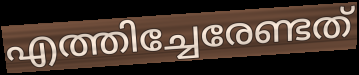
എത്തിച്ചേരേണ്ടത്